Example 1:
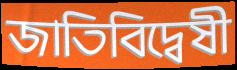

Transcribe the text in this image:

জাতিবিদ্বেষী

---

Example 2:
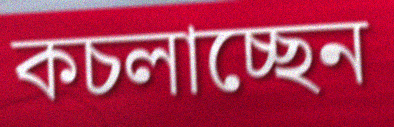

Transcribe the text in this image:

কচলাচ্ছেন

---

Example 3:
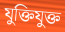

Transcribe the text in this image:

যুক্তিযুক্ত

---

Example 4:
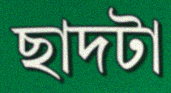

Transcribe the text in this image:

ছাদটা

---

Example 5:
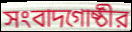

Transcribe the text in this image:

সংবাদগোষ্ঠীর